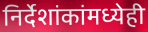
निर्देशांकांमध्येही